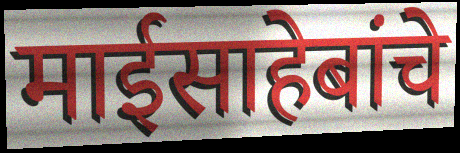
माईसाहेबांचे